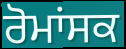
ਰੋਮਾਂਸਕ